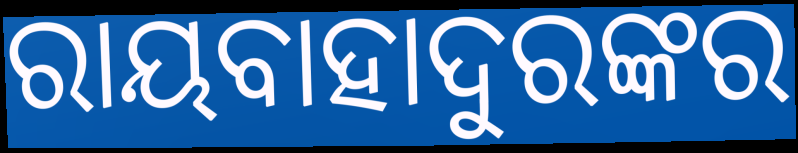
ରାୟବାହାଦୁରଙ୍କର